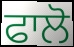
ਫਾਲੋ